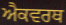
ਐਕਵਰਥ